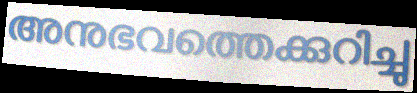
അനുഭവത്തെക്കുറിച്ചു